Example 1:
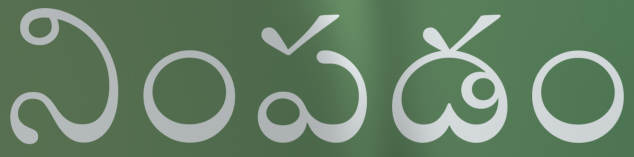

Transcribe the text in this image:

నింపడం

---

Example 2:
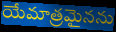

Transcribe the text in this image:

యేమాత్రమైనను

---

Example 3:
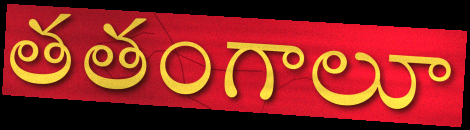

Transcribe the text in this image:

తతంగాలూ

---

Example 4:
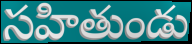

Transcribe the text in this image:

సహితుండు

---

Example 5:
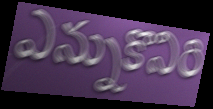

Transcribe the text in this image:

ఎన్నుకొనిరి